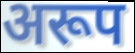
अरूप